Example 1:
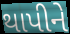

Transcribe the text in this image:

થાપીને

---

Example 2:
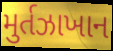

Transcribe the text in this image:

મુર્તઝાખાન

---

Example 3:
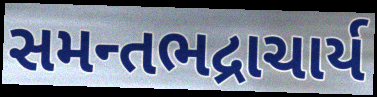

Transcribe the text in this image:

સમન્તભદ્રાચાર્ય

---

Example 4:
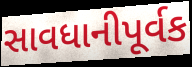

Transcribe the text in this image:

સાવધાનીપૂર્વક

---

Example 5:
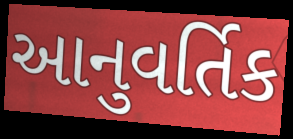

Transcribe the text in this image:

આનુવર્તિક